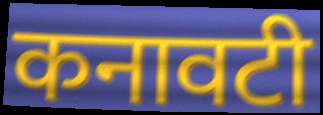
कनावटी